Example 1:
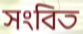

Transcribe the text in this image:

সংবিত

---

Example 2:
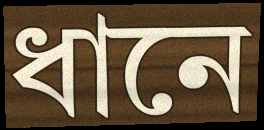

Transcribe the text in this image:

ধানে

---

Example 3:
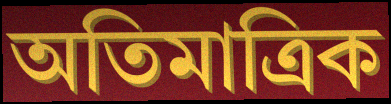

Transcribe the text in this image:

অতিমাত্রিক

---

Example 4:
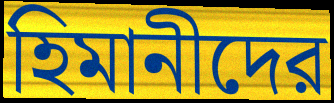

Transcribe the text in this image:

হিমানীদের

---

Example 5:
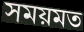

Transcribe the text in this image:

সময়মত